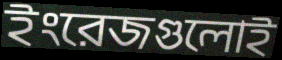
ইংরেজগুলোই